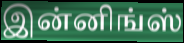
இன்னிங்ஸ்